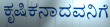
ಕೃಷಿಕನಾದವನಿಗೆ